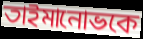
তাইমানোভকে